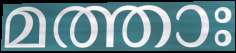
മത്താഃ